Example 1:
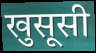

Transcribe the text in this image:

खुसूसी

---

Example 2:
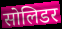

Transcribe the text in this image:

सोलिडर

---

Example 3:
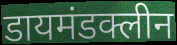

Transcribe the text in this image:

डायमंडक्लीन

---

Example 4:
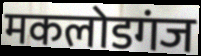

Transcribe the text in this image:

मकलोडगंज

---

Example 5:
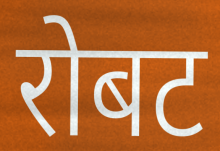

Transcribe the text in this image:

रोबट